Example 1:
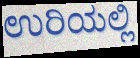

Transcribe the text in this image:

ಉರಿಯಲ್ಲಿ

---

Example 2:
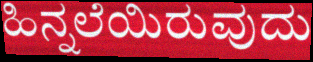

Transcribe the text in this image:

ಹಿನ್ನಲೆಯಿರುವುದು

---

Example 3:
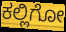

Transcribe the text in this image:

ಕಲ್ಲಿಗೋ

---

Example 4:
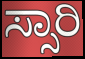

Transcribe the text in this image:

ಸ್ಸಾರಿ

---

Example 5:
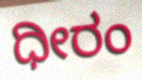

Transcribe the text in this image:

ಧೀರಂ